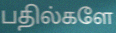
பதில்களே